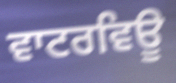
ਵਾਟਰਵਿਊ